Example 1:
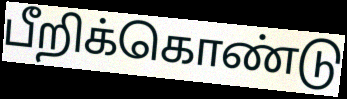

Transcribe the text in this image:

பீறிக்கொண்டு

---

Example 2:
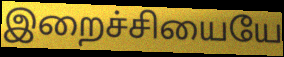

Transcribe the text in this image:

இறைச்சியையே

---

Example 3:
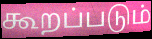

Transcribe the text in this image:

கூறப்படும்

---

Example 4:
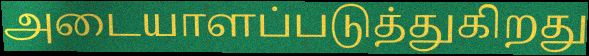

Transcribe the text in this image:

அடையாளப்படுத்துகிறது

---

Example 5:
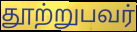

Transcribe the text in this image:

தூற்றுபவர்